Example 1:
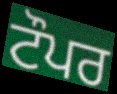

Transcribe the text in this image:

ਟੌਪਰ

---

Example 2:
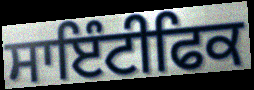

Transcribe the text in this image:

ਸਾਇੰਟੀਫਿਕ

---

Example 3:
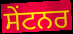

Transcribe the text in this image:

ਸੇਂਟਨਰ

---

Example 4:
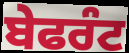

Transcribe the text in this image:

ਬੇਫਰੰਟ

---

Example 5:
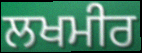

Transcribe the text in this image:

ਲਖਮੀਰ